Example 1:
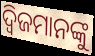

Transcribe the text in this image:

ଦ୍ୱିଜମାନଙ୍କୁ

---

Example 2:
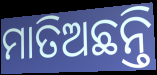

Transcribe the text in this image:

ମାତିଅଛନ୍ତି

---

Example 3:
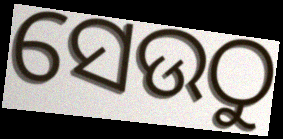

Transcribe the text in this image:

ସେଉଠୁ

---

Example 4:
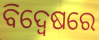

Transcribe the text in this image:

ବିଦ୍ୱେଷରେ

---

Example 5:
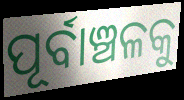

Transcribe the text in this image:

ପୂର୍ବାଞ୍ଚଳକୁ